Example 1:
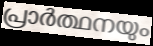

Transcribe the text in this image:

പ്രാർത്ഥനയും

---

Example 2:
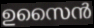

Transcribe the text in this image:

ഉസൈൻ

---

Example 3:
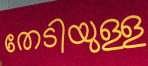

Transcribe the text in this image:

തേടിയുള്ള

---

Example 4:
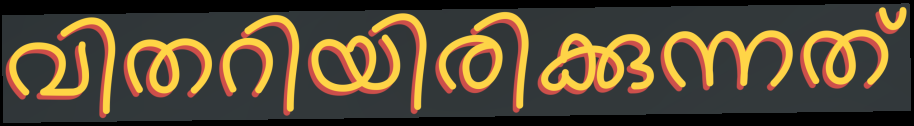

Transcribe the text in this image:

വിതറിയിരിക്കുന്നത്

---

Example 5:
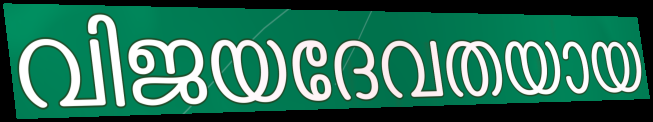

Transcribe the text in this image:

വിജയദേവതയായ